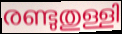
രണ്ടുതുള്ളി